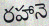
రహానె